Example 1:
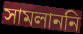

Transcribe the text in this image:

সামলাননি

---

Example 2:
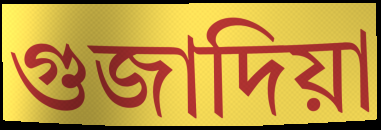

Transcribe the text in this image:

গুজাদিয়া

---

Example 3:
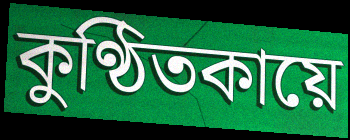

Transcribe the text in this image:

কুণ্ঠিতকায়ে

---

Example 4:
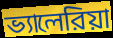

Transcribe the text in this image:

ভ্যালেরিয়া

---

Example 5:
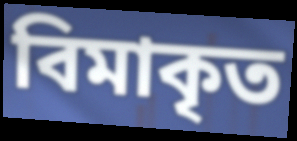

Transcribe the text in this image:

বিমাকৃত